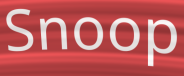
Snoop